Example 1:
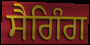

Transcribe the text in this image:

ਸੈਗਿੰਗ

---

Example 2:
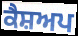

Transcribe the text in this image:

ਕੈਸ਼ਅਪ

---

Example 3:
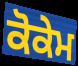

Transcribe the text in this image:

ਕੋਕੇਮ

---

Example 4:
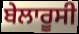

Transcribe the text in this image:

ਬੇਲਾਰੂਸੀ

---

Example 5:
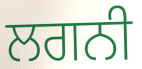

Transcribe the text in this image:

ਲਗਨੀ